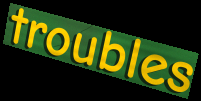
troubles